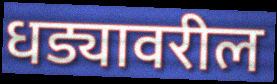
धड्यावरील